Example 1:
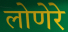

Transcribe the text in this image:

लोणेरे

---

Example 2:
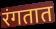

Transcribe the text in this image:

रंगतात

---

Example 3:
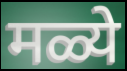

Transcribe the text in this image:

मळ्ये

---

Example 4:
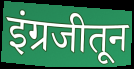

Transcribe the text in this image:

इंग्रजीतून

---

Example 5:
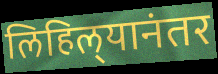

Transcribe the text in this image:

लिहिल्यानंतर